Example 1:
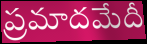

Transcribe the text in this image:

ప్రమాదమేదీ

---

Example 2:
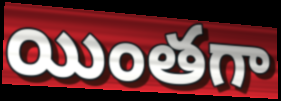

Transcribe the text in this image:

యింతగా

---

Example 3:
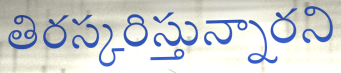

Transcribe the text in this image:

తిరస్కరిస్తున్నారని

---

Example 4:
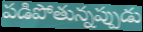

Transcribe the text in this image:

పడిపోతున్నప్పుడు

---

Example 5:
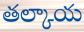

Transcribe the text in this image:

తల్కాయ